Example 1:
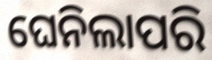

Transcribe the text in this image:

ଘେନିଲାପରି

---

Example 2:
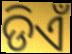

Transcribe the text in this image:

ଡିଏଁ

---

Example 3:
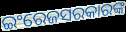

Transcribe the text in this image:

ଇଂରେଜସରକାରଙ୍କ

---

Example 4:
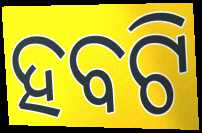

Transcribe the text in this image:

ହବଟି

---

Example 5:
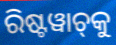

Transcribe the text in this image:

ରିଷ୍ଟୱାଚ୍‌କୁ